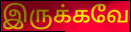
இருக்கவே